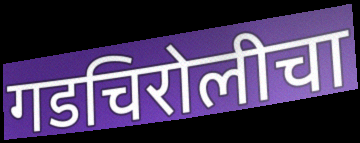
गडचिरोलीचा